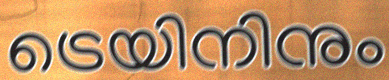
ട്രെയിനിനും